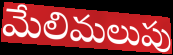
మేలిమలుపు